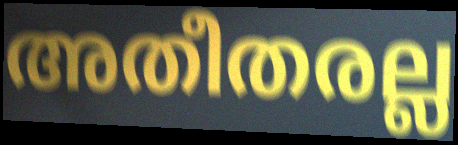
അതീതരല്ല